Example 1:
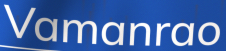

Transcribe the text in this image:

Vamanrao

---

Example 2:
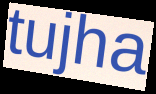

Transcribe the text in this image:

tujha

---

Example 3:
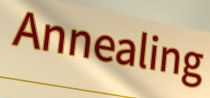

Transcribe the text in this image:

Annealing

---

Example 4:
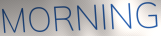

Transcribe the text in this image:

MORNING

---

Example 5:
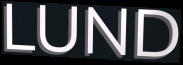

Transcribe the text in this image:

LUND